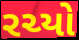
રચ્યો